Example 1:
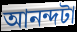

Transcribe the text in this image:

আনন্দটা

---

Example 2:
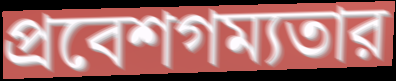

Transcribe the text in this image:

প্রবেশগম্যতার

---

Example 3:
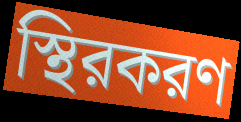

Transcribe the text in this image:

স্থিরকরণ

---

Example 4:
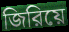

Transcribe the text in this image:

জিরিয়ে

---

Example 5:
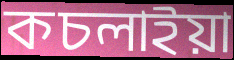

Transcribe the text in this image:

কচলাইয়া